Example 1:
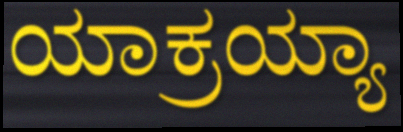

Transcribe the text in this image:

ಯಾಕ್ರಯ್ಯಾ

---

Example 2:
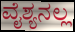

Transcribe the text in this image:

ವೈಶ್ಯನಲ್ಲ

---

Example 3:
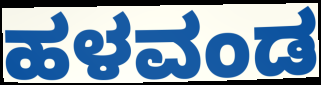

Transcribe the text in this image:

ಹಳವಂಡ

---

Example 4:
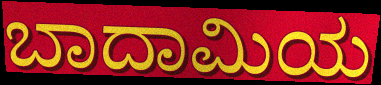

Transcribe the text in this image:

ಬಾದಾಮಿಯ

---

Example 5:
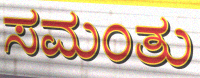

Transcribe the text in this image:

ಸಮಂತು